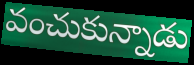
వంచుకున్నాడు